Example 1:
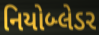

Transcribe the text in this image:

નિયોબ્લેડર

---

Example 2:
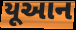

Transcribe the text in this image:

યૂઆન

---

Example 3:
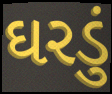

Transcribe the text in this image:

ઘરડું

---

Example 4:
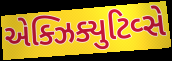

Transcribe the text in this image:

એક્ઝિક્યુટિવ્સે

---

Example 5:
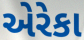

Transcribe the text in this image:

એરેકા